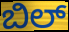
ಬಿಲ್